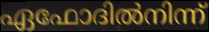
ഏഫോദിൽനിന്ന്